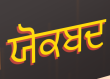
ਯੋਕਬਦ